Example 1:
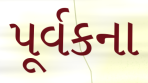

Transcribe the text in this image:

પૂર્વકના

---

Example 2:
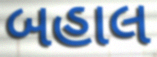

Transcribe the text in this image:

બહાલ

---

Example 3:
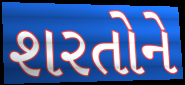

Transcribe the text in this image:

શરતોને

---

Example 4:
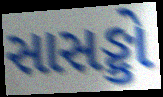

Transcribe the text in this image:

સાસઙ્કો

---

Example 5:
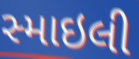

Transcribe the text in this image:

સ્માઇલી